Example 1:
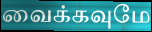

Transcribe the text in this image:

வைக்கவுமே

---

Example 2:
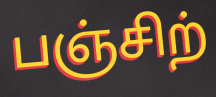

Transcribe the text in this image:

பஞ்சிற்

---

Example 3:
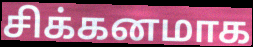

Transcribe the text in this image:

சிக்கனமாக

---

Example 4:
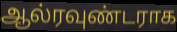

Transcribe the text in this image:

ஆல்ரவுண்டராக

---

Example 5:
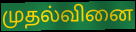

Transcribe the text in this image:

முதல்வினை